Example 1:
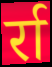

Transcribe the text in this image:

र्रा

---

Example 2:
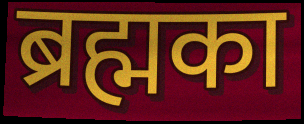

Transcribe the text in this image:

ब्रह्मका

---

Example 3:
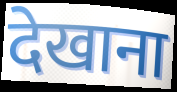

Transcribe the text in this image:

देखाना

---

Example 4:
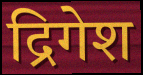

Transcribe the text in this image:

द्रिगेश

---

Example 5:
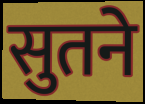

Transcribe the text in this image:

सुतने